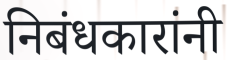
निबंधकारांनी